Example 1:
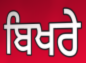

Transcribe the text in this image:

ਬਿਖਰੇ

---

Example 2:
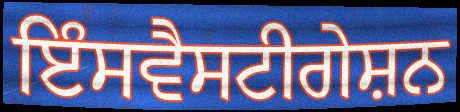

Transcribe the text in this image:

ਇੰਸਵੈਸਟੀਗੇਸ਼ਨ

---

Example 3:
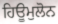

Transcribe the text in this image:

ਹਿਊਮੁਲੋਨ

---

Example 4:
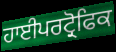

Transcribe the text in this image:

ਹਾਈਪਰਟ੍ਰੋਫਿਕ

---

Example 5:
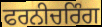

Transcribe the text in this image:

ਫਰਨੀਚਰਿੰਗ